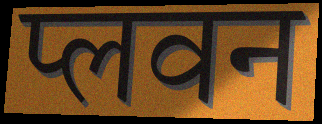
प्लवन